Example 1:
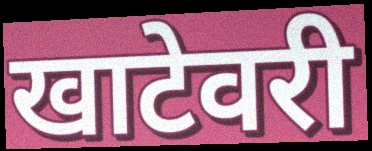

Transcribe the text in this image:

खाटेवरी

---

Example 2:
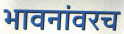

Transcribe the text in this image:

भावनांवरच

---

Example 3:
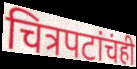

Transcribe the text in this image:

चित्रपटांचंही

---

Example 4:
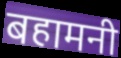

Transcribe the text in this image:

बहामनी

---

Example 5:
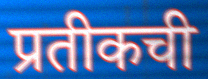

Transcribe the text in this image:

प्रतीकची